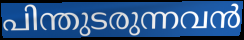
പിന്തുടരുന്നവൻ